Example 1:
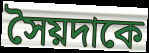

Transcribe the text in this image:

সৈয়দাকে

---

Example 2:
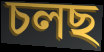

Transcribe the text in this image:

চলছ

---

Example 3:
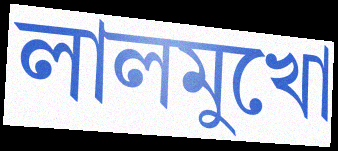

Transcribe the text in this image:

লালমুখো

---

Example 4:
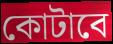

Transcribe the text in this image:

কোটাবে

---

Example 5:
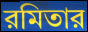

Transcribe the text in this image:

রমিতার